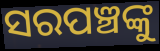
ସରପଞ୍ଚଙ୍କୁ